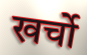
खर्चो